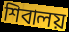
শিবালয়